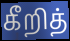
கீறித்